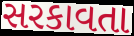
સરકાવતા